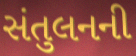
સંતુલનની